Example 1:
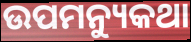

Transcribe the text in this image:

ଉପମନ୍ୟୁକଥା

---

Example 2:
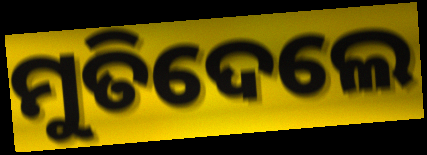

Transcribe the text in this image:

ମୁତିଦେଲେ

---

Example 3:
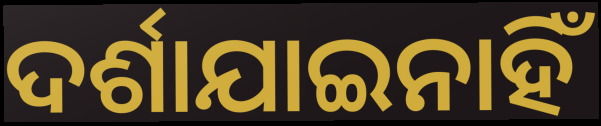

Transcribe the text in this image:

ଦର୍ଶାଯାଇନାହିଁ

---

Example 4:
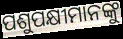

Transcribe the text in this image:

ପଶୁପକ୍ଷୀମାନଙ୍କୁ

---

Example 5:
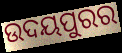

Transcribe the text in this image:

ଉଦୟପୁରର